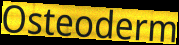
Osteoderm